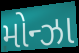
મોન્ઝા